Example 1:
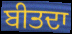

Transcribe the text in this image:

ਬੀਤਦਾ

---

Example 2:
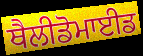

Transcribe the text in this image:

ਥੈਲੀਡੋਮਾਈਡ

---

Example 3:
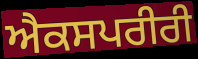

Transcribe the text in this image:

ਐਕਸਪਰੀਰੀ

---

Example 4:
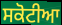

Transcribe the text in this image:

ਸਕੋਟੀਆ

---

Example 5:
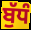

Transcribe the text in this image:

ਬੁੱਧੰ